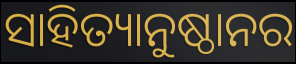
ସାହିତ୍ୟାନୁଷ୍ଠାନର